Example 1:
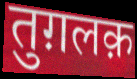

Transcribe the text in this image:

तुग़लक़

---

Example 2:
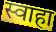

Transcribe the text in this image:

स्‍वाहा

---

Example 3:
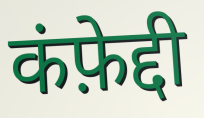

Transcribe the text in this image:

कंफ़ेद्दी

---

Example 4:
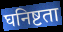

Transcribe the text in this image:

घनिष्टता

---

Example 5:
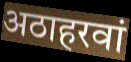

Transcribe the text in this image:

अठाहरवां